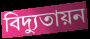
বিদ্যুতায়ন